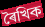
ৰৈখিক